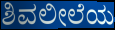
ಶಿವಲೀಲೆಯ